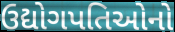
ઉદ્યોગપતિઓનો